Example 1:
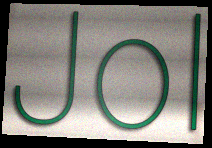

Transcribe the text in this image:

Jol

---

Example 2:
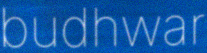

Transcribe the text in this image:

budhwar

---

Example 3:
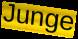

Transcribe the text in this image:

Junge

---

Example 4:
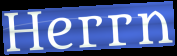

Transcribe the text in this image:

Herrn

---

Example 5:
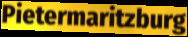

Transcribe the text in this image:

Pietermaritzburg